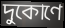
দুকোণে